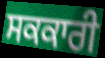
ਸਕਕਾਰੀ